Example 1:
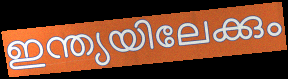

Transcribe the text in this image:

ഇന്ത്യയിലേക്കും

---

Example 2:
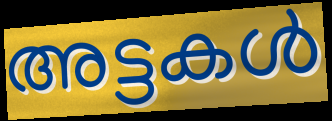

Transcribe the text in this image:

അട്ടകൾ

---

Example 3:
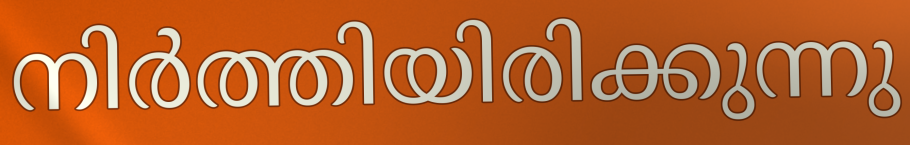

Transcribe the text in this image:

നിർത്തിയിരിക്കുന്നു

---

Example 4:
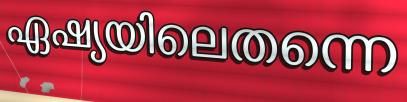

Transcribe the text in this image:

ഏഷ്യയിലെതന്നെ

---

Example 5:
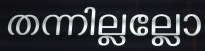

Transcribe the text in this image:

തന്നില്ലല്ലോ